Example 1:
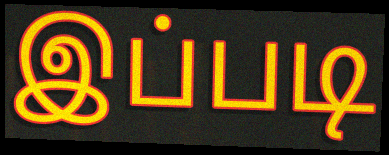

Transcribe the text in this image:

இப்படி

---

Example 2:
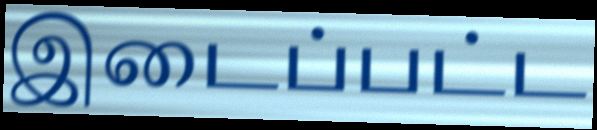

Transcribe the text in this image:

இடைப்பட்ட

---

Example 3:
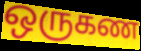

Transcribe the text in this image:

ஒருகண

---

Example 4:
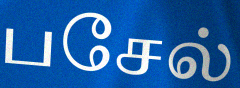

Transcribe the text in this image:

பசேல்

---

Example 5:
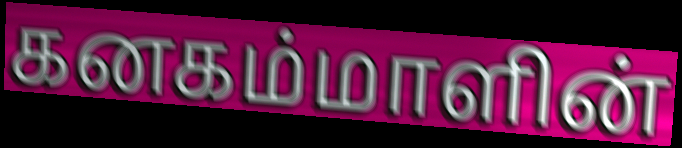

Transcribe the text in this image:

கனகம்மாளின்